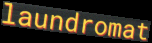
laundromat